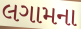
લગામના